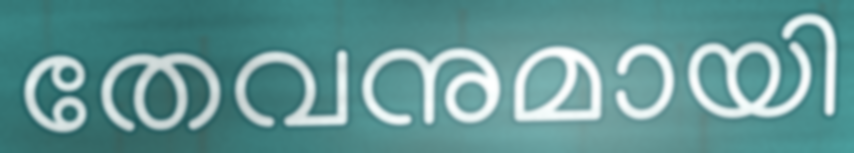
തേവനുമായി